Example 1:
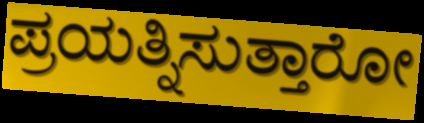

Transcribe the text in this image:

ಪ್ರಯತ್ನಿಸುತ್ತಾರೋ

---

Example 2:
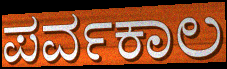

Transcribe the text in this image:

ಪರ್ವಕಾಲ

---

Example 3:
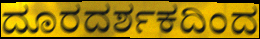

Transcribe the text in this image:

ದೂರದರ್ಶಕದಿಂದ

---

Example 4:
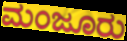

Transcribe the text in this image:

ಮಂಜೂರು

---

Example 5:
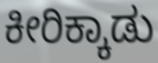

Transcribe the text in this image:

ಕೀರಿಕ್ಕಾಡು